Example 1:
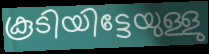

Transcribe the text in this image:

കൂടിയിട്ടേയുള്ളു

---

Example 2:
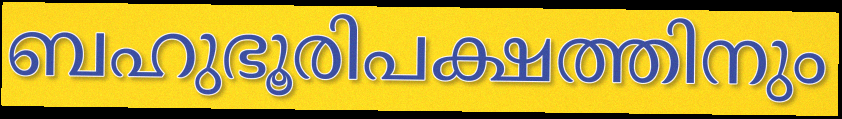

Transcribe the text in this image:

ബഹുഭൂരിപക്ഷത്തിനും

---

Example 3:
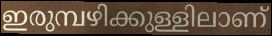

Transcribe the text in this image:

ഇരുമ്പഴിക്കുള്ളിലാണ്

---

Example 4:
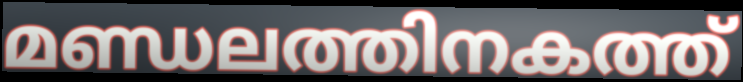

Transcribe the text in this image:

മണ്ഡലത്തിനകത്ത്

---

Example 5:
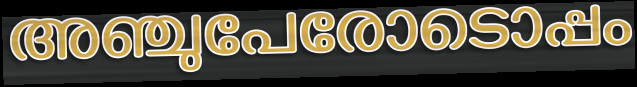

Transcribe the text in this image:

അഞ്ചുപേരോടൊപ്പം